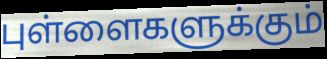
புள்ளைகளுக்கும்